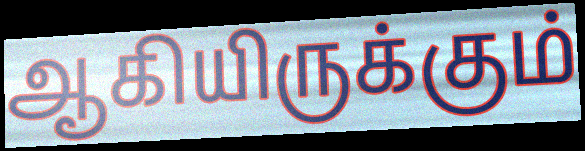
ஆகியிருக்கும்